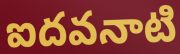
ఐదవనాటి